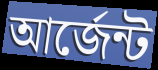
আর্জেন্ট